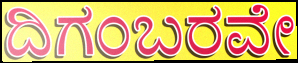
ದಿಗಂಬರವೇ